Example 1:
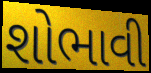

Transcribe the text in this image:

શોભાવી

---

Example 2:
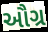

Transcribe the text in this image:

ઔગ્ર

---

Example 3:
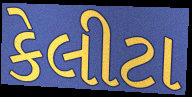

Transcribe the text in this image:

કેલીટા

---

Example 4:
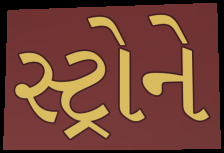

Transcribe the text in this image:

સ્ટ્રોને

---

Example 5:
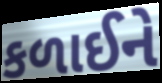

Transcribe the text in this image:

કળાઈને